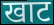
खाट